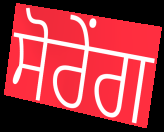
ਸੋਰੇਂਗ